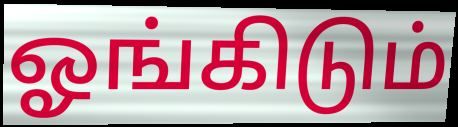
ஓங்கிடும்